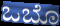
ಒಬೊ